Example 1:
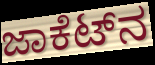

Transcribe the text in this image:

ಜಾಕೆಟ್‌ನ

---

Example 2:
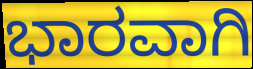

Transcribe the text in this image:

ಭಾರವಾಗಿ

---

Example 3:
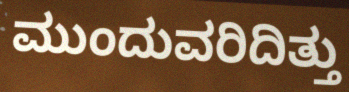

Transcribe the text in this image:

ಮುಂದುವರಿದಿತ್ತು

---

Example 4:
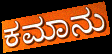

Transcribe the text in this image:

ಕಮಾನು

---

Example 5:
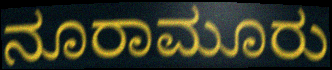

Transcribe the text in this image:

ನೂರಾಮೂರು